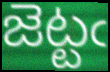
జెట్టఁ